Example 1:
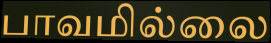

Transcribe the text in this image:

பாவமில்லை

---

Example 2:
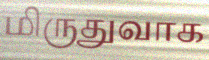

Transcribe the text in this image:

மிருதுவாக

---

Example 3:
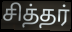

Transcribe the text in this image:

சித்தர்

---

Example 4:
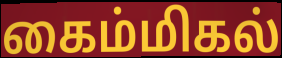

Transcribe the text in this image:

கைம்மிகல்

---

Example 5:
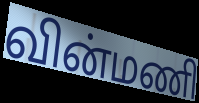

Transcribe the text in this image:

வின்மணி